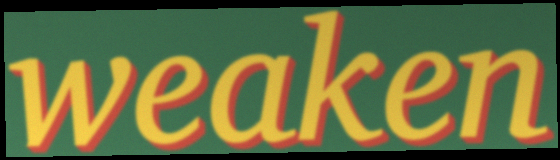
weaken